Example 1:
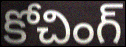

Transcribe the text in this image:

కోచింగ్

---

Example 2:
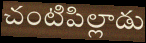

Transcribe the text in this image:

చంటిపిల్లాడు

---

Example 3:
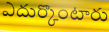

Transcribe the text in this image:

ఎదుర్కొంటారు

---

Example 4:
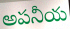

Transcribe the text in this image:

అపనీయ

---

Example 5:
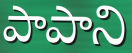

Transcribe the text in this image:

పాపాని